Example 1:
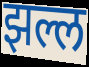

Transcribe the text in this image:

झल्ल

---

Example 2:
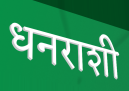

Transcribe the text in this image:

धनराशी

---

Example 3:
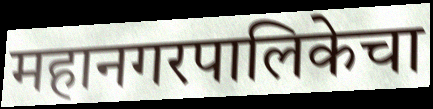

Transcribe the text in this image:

महानगरपालिकेचा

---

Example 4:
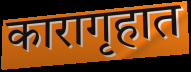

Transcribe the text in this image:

कारागृहात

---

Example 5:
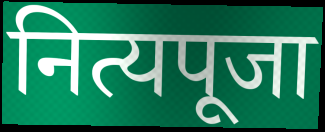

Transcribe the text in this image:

नित्यपूजा